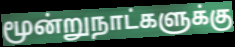
மூன்றுநாட்களுக்கு